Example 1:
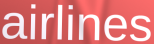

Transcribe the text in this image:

airlines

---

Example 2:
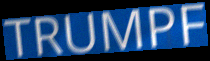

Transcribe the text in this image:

TRUMPF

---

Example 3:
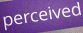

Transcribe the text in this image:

perceived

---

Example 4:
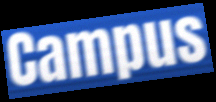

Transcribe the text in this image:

Campus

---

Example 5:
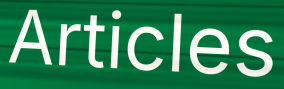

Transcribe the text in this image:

Articles